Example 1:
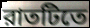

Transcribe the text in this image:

রাতটিতে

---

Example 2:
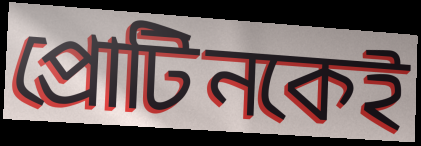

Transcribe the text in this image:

প্রোটিনকেই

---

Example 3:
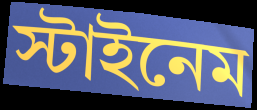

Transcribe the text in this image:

স্টাইনেম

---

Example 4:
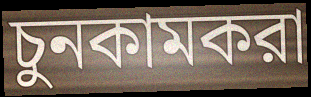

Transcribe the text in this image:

চুনকামকরা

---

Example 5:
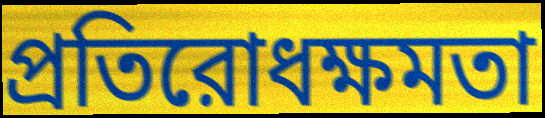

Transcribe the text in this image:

প্রতিরোধক্ষমতা